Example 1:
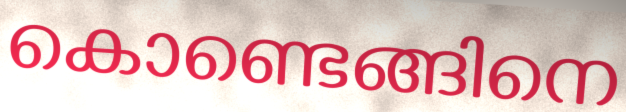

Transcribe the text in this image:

കൊണ്ടെങ്ങിനെ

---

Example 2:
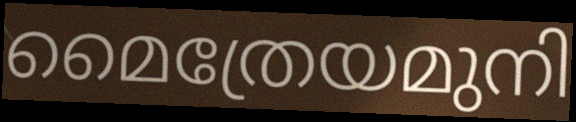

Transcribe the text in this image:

മൈത്രേയമുനി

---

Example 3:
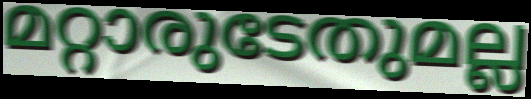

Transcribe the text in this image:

മറ്റാരുടേതുമല്ല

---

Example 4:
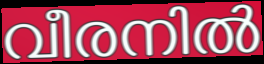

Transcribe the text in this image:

വീരനിൽ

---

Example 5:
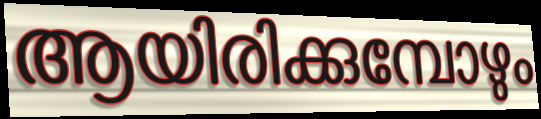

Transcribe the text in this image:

ആയിരിക്കുമ്പോഴും